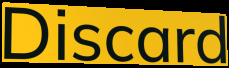
Discard